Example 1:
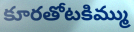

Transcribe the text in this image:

కూరతోటకిమ్ము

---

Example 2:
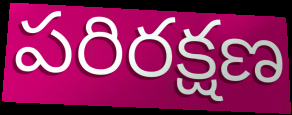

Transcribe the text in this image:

పరిరక్షణ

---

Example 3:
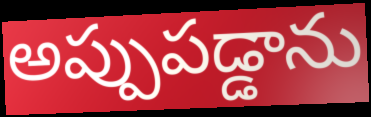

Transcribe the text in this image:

అప్పుపడ్డాను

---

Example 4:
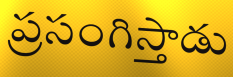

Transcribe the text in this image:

ప్రసంగిస్తాడు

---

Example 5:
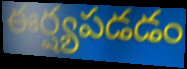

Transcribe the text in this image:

ఈర్ష్యపడడం